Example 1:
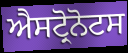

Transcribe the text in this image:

ਐਸਟ੍ਰੋਨੋਟਸ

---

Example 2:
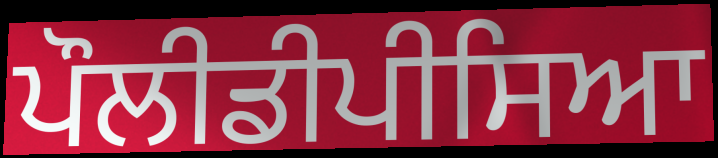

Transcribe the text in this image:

ਪੌਲੀਡੀਪੀਸਿਆ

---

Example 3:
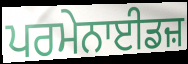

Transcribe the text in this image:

ਪਰਮੇਨਾਈਡਜ਼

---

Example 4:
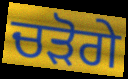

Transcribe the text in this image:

ਚੜੋਗੇ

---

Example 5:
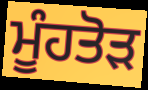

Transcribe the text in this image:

ਮੂੰਹਤੋੜ